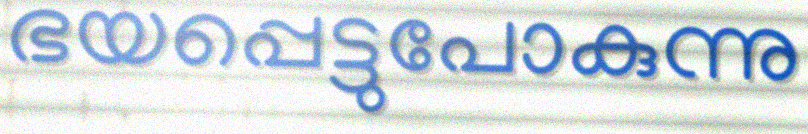
ഭയപ്പെട്ടുപോകുന്നു